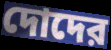
দোদের